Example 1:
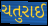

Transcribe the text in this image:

ચતુરાઈ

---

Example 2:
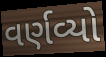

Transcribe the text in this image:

વર્ણવ્યો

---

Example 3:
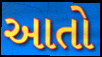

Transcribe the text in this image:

આતો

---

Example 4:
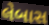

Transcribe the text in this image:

લેબાસ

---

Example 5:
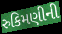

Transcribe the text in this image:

રુકિમણીની